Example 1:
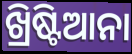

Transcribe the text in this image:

ଖ୍ରିଷ୍ଟିଆନା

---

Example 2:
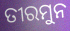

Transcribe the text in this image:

ତୀରମୁନ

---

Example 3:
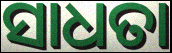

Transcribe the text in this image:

ସାଧତା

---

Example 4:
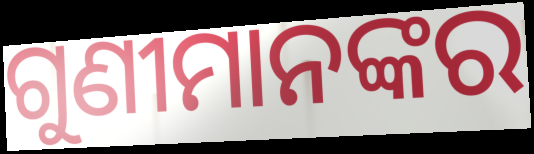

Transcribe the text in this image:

ଗୁଣୀମାନଙ୍କର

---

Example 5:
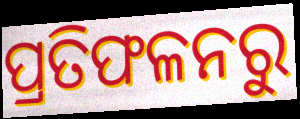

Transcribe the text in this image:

ପ୍ରତିଫଳନରୁ